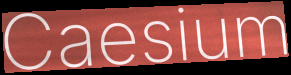
Caesium